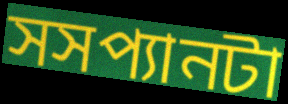
সসপ্যানটা